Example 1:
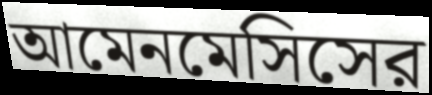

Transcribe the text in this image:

আমেনমেসিসের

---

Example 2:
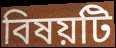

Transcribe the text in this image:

বিষয়টি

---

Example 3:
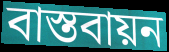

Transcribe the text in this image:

বাস্তবায়ন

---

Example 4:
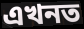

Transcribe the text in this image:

এখনত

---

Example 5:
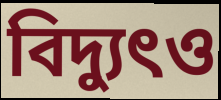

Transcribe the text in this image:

বিদ্যুৎও